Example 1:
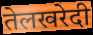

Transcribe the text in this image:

तेलखरेदी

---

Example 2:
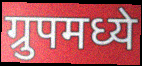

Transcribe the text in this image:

ग्रुपमध्ये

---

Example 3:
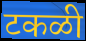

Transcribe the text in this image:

टकळी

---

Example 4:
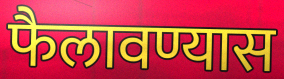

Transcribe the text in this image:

फैलावण्यास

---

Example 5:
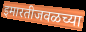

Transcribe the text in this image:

इमारतीजवळच्या